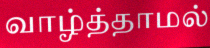
வாழ்த்தாமல்